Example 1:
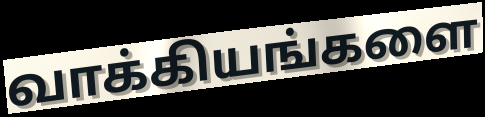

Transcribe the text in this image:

வாக்கியங்களை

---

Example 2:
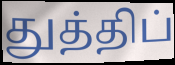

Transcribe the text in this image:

துத்திப்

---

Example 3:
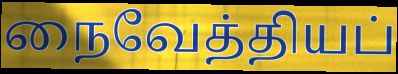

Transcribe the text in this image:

நைவேத்தியப்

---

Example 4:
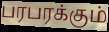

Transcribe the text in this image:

பரபரக்கும்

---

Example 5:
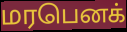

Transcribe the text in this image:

மரபெனக்